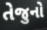
તેજુનો